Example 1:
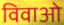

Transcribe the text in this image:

विवाओ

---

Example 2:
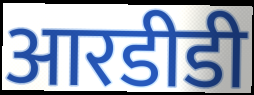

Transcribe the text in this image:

आरडीडी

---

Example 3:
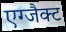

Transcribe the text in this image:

एग्जैक्ट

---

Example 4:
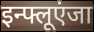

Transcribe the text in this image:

इन्फ्लूएंजा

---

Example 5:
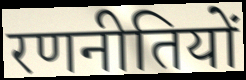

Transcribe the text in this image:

रणनीतियों